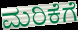
ಮರಿಕೆಗೆ